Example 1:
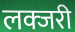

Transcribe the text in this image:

लक्‍जरी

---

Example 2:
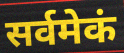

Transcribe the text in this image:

सर्वमेकं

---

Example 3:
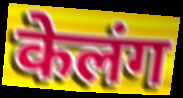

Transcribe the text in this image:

केलंग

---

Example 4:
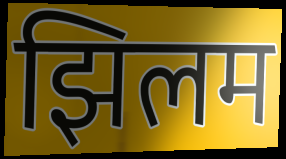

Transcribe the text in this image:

झिलम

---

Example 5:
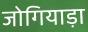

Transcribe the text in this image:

जोगियाड़ा